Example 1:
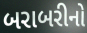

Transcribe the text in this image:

બરાબરીનો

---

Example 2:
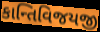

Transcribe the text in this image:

કાન્તિવિજયજી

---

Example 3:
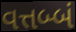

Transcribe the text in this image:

વત્તબ્બં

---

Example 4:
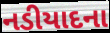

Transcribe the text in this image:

નડીયાદના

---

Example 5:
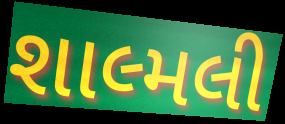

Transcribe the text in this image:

શાલ્મલી